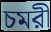
চমরী